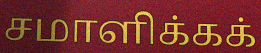
சமாளிக்கக்